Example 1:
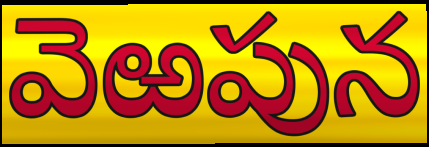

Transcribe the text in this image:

వెఱపున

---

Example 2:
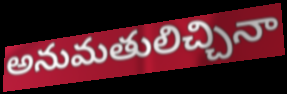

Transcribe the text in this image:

అనుమతులిచ్చినా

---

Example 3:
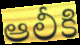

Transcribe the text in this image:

ఆలీకి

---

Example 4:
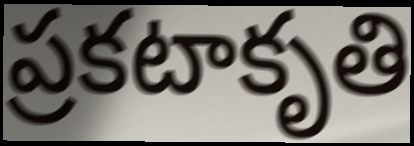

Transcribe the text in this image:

ప్రకటాకృతి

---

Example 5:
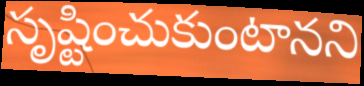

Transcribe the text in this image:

సృష్టించుకుంటానని